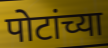
पोटांच्या